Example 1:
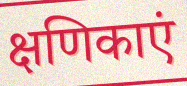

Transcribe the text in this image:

क्षणिकाएं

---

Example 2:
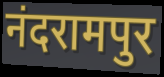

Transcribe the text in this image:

नंदरामपुर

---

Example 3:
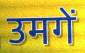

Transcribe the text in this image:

उमगें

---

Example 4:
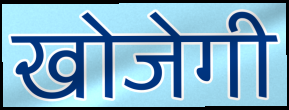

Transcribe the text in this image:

खोजेगी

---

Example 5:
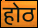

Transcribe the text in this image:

होठ